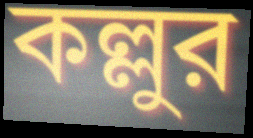
কল্লুর